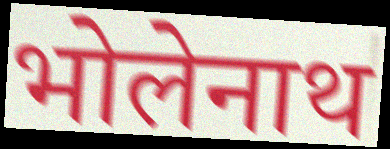
भोलेनाथ